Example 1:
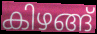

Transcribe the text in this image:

കിഴങ്ങ്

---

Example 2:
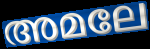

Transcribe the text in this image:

അമലേ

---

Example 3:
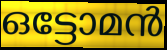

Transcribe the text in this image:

ഒട്ടോമൻ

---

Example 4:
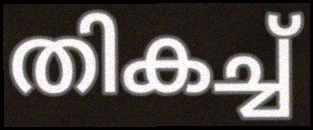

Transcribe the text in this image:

തികച്ച്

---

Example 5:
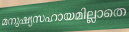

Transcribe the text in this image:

മനുഷ്യസഹായമില്ലാതെ